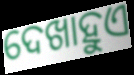
ଦେଖାହୁଏ